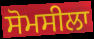
ਸੋਮਸੀਲਾ